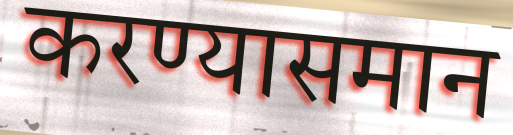
करण्यासमान